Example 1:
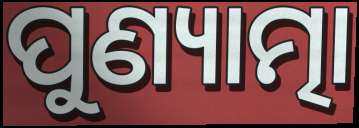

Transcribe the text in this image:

ପୁଣ୍ୟାତ୍ମା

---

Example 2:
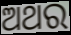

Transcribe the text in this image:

ଅଥର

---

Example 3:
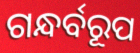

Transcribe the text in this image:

ଗନ୍ଧର୍ବରୂପ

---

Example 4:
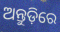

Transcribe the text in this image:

ଅନ୍ତୁଡ଼ିରେ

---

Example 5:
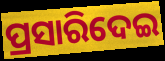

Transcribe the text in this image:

ପ୍ରସାରିଦେଇ